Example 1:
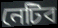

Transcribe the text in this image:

নেটিব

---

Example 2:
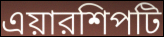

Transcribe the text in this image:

এয়ারশিপটি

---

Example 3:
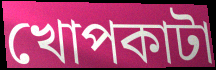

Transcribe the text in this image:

খোপকাটা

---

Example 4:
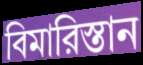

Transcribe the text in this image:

বিমারিস্তান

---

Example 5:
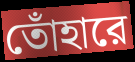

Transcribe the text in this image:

তোঁহারে